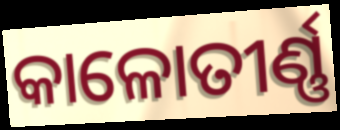
କାଳୋତୀର୍ଣ୍ଣ